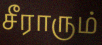
சீராரும்